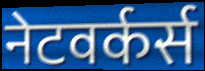
नेटवर्कर्स